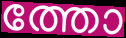
ത്തോ